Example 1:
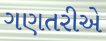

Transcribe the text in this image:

ગણતરીએ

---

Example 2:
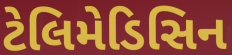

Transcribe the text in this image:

ટેલિમેડિસિન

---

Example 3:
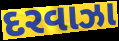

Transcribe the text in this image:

દરવાઝા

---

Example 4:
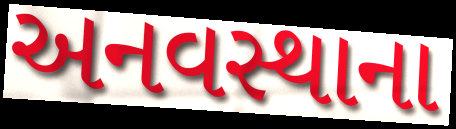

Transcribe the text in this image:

અનવસ્થાના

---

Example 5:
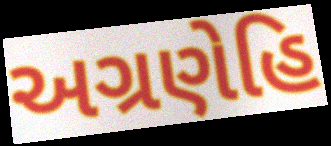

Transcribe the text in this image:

અગ્રણેહિ